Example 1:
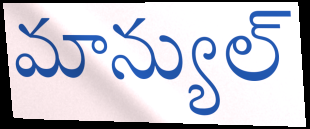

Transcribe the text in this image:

మాన్యుల్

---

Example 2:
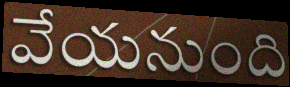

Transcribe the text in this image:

వేయనుంది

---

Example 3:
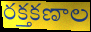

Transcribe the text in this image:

రక్తకణాల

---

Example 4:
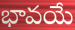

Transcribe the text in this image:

భావయే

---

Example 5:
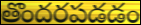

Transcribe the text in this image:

తొందరపడడం